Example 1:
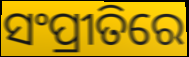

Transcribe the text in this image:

ସଂପ୍ରୀତିରେ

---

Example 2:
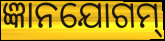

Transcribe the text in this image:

ଜ୍ଞାନଯୋଗମ୍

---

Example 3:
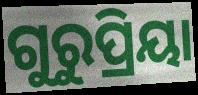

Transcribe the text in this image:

ଗୁରୁପ୍ରିୟା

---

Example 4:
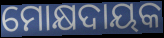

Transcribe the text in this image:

ମୋକ୍ଷଦାୟକ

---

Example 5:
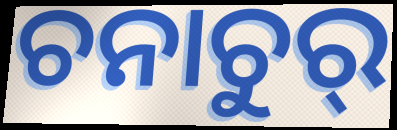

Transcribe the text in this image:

ଚନାଚୁର୍